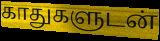
காதுகளுடன்